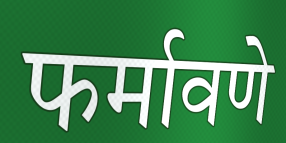
फर्मावणे